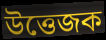
উত্তেজক